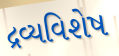
દ્રવ્યવિશેષ